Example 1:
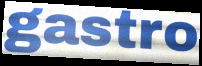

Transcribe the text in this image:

gastro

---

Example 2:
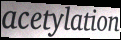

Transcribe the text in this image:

acetylation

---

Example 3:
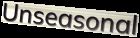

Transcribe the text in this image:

Unseasonal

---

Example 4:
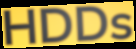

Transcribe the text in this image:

HDDs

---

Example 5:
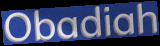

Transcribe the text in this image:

Obadiah